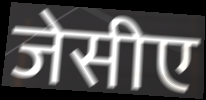
जेसीए